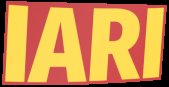
IARI